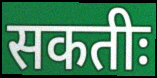
सकतीः